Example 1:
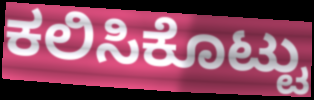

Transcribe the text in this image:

ಕಲಿಸಿಕೊಟ್ಟು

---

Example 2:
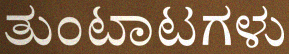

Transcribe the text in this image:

ತುಂಟಾಟಗಳು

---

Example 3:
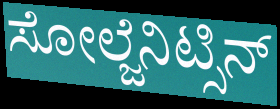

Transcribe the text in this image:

ಸೋಲ್ಜೆನಿಟ್ಸಿನ್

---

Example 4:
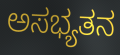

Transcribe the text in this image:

ಅಸಭ್ಯತನ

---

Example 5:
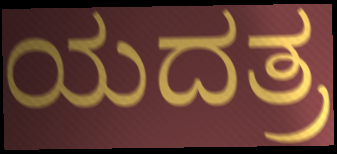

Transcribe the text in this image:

ಯದತ್ರ